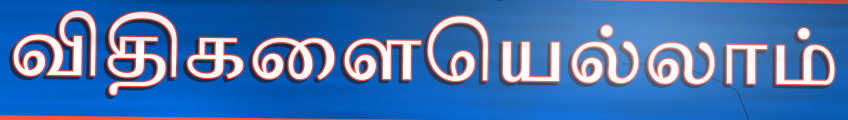
விதிகளையெல்லாம்